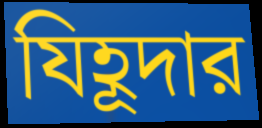
যিহূদার